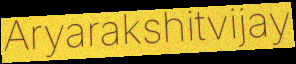
Aryarakshitvijay